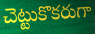
చెట్టుకొకరుగా